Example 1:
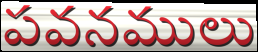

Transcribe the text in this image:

పవనములు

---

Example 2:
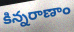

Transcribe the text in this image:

కిన్నరాణాం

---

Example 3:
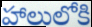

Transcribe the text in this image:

హాలులోకి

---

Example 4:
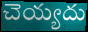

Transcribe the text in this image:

చెయ్యదు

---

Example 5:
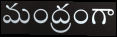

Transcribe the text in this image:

మంద్రంగా